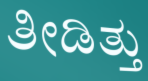
ತೀಡಿತ್ತು